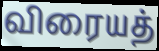
விரையத்